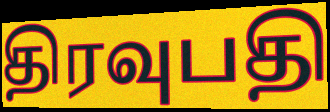
திரவுபதி